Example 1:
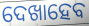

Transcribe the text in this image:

ଦେଖାହେବ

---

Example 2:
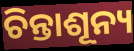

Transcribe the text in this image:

ଚିନ୍ତାଶୂନ୍ୟ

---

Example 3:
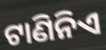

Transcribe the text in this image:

ଟାଣିନିଏ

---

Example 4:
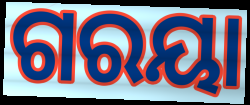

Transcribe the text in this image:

ଗରୟା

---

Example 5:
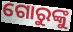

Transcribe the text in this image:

ଗୋରୁଙ୍କୁ